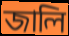
জালি